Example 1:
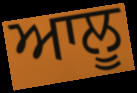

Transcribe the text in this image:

ਆਲੂ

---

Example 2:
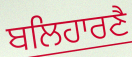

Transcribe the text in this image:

ਬਲਿਹਾਰਣੈ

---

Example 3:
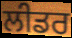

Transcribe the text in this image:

ਲੀਡਰ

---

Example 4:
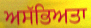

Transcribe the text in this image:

ਅਸੱਭਿਅਤਾ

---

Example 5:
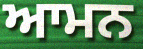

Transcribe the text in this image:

ਆਮਨ